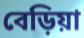
বেড়িয়া